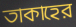
তাকাহের